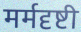
मर्मदृष्टी